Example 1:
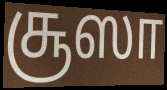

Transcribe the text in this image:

சூஸா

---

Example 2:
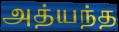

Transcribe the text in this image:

அத்யந்த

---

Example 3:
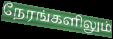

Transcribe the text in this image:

நேரங்களிலும்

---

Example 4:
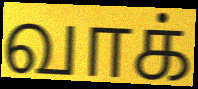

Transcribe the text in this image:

வாக்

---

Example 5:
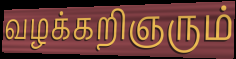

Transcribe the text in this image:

வழக்கறிஞரும்